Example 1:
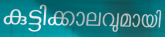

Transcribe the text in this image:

കുട്ടിക്കാലവുമായി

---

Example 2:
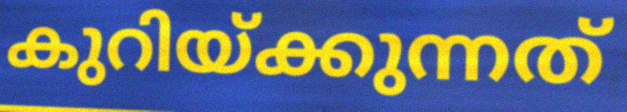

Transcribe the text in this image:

കുറിയ്ക്കുന്നത്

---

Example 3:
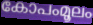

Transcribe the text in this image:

കോപംമൂലം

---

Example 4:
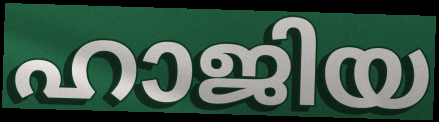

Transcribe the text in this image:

ഹാജിയ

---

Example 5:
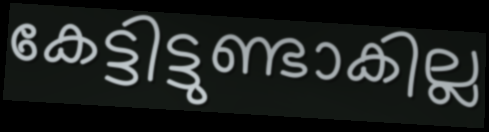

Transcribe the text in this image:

കേട്ടിട്ടുണ്ടാകില്ല